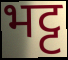
भट्ट